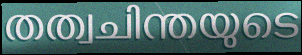
തത്വചിന്തയുടെ